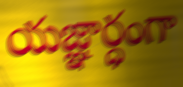
యజ్ఞార్ధంగా